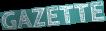
GAZETTE